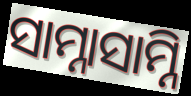
ସାମ୍ନାସାମ୍ନି